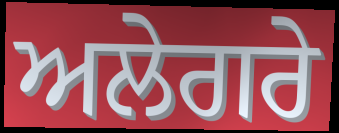
ਅਲੇਗਰੇ